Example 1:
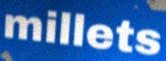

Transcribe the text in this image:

millets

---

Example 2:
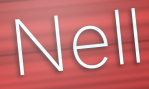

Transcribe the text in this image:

Nell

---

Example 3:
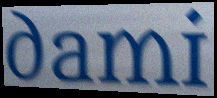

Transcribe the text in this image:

dami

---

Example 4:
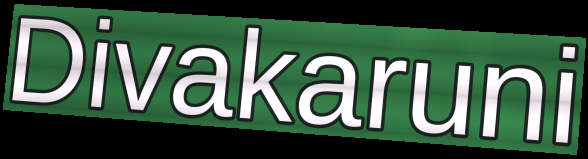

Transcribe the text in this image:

Divakaruni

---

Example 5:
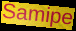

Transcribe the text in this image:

Samipe